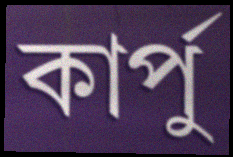
কার্পু